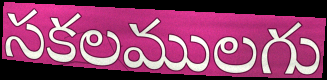
సకలములగు